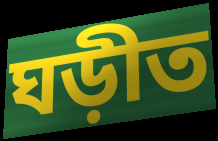
ঘড়ীত